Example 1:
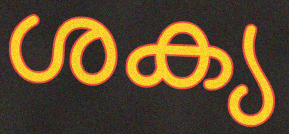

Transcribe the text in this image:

ശക്യ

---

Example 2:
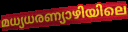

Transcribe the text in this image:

മധ്യധരണ്യാഴിയിലെ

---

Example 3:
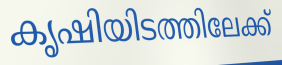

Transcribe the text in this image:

കൃഷിയിടത്തിലേക്ക്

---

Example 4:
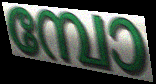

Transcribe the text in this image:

മ്പോ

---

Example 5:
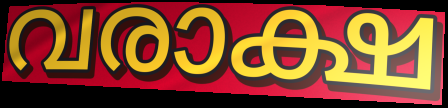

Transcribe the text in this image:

വരാക്ഷ